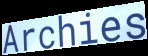
Archies